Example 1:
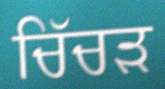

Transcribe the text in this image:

ਚਿੱਚੜ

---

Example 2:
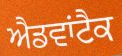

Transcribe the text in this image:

ਐਡਵਾਂਟੈਕ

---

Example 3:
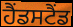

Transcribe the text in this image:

ਹੈਂਡਸਟੈਂਡ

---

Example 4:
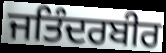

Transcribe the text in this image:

ਜਤਿੰਦਰਬੀਰ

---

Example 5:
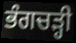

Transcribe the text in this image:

ਭੰਗਚੜ੍ਹੀ